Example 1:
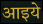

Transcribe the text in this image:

आइये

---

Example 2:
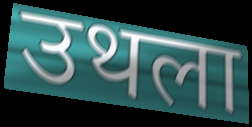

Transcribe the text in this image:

उथला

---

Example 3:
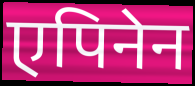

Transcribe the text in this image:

एपिनेन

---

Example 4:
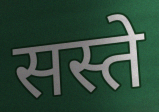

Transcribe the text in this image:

सस्ते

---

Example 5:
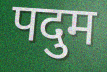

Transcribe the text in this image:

पदुम